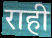
राही